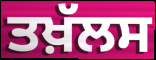
ਤਖ਼ੱਲਸ